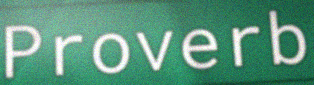
Proverb